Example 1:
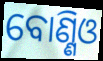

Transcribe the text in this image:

ବୋଣ୍ଣିଓ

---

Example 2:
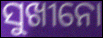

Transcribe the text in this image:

ସୁଖୀନୋ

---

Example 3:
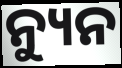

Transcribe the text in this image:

ନ୍ୟୁନ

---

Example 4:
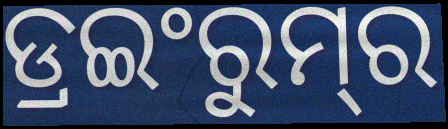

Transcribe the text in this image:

ଡ୍ରଇଂରୁମ୍‌ର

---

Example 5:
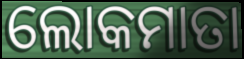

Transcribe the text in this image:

ଲୋକମାତା